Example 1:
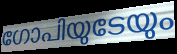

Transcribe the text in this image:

ഗോപിയുടേയും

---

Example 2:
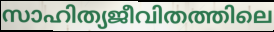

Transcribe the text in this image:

സാഹിത്യജീവിതത്തിലെ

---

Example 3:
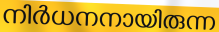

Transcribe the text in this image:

നിർധനനായിരുന്ന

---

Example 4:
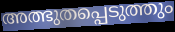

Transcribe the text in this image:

അത്ഭുതപ്പെടുത്തും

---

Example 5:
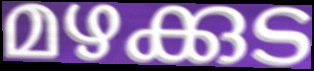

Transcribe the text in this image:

മഴക്കുട